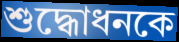
শুদ্ধোধনকে